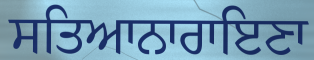
ਸਤਿਆਨਾਰਾਇਣਾ